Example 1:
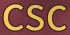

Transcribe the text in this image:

csc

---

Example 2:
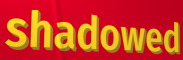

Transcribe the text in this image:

shadowed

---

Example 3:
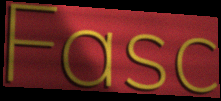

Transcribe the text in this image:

Fasc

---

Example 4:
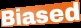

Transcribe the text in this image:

Biased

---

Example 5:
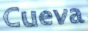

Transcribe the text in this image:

Cueva